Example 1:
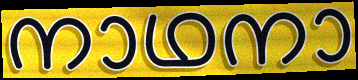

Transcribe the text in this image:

നാഥനാ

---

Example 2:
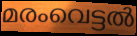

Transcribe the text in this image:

മരംവെട്ടൽ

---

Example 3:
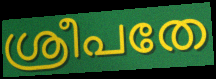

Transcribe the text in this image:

ശ്രീപതേ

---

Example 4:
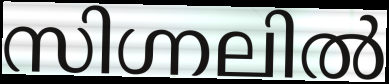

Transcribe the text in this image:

സിഗ്നലിൽ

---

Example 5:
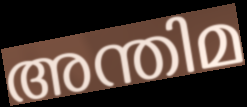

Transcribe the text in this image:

അന്തിമ